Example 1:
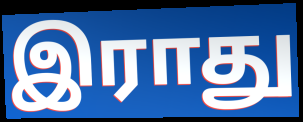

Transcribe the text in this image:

இராது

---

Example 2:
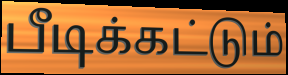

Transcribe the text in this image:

பீடிக்கட்டும்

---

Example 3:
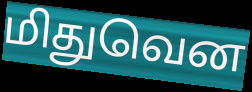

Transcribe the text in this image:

மிதுவென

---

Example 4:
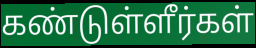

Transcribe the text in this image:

கண்டுள்ளீர்கள்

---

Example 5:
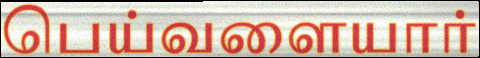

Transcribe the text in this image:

பெய்வளையார்